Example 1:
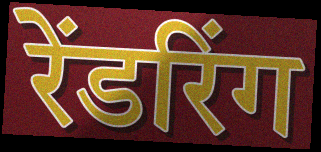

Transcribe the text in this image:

रेंडरिंग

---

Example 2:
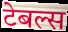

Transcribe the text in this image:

टेबल्स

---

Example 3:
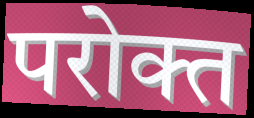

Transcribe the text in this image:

परोक्त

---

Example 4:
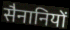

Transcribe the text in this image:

सैनानियों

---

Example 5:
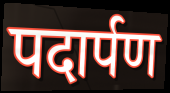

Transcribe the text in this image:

पदार्पण